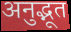
अनुद्भूत